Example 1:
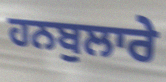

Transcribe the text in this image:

ਹਨਬੁਲਾਰੇ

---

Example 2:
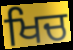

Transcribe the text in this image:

ਖਿਚ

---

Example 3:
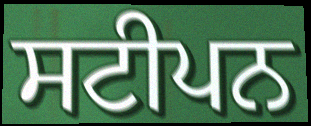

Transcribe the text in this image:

ਸਟੀਪਨ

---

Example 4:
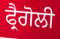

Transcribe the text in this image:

ਫ੍ਰੈਗੋਲੀ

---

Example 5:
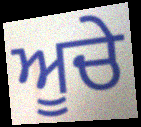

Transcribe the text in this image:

ਅੂਚੇ